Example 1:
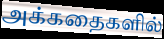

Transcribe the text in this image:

அக்கதைகளில்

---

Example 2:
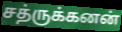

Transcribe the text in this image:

சத்ருக்கனன்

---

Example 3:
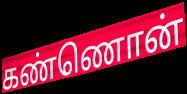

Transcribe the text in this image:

கண்ணொன்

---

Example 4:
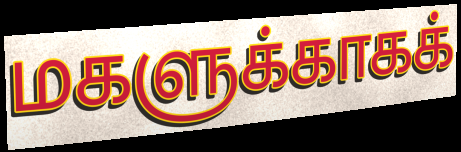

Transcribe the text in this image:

மகளுக்காகக்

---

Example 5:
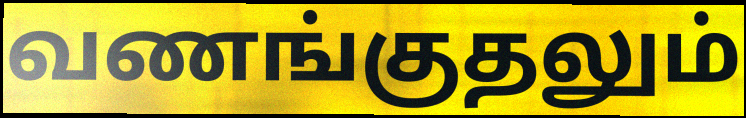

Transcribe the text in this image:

வணங்குதலும்